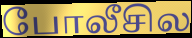
போலீசில